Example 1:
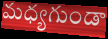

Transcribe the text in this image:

మధ్యగుండా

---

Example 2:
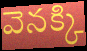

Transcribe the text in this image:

వెనక్కి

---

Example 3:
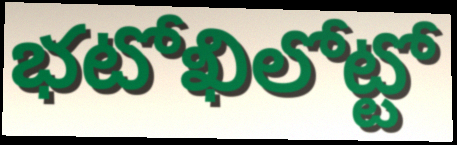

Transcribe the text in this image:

భటోఖిలోట్టో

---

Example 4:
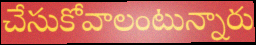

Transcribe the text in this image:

చేసుకోవాలంటున్నారు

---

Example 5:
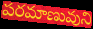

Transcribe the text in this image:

పరమాణువుని